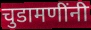
चुडामणींनी